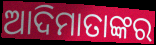
ଆଦିମାତାଙ୍କର